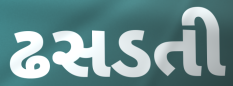
ઢસડતી